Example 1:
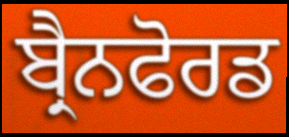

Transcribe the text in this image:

ਬ੍ਰੈਨਫੋਰਡ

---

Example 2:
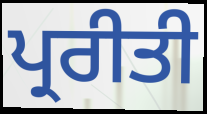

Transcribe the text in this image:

ਪ੍ਰਰੀਤੀ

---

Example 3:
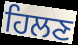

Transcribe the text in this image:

ਹਿਲਣ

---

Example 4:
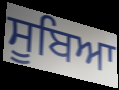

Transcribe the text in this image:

ਸੂਬਿਆ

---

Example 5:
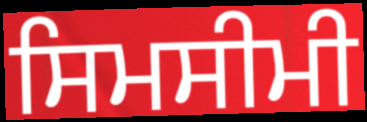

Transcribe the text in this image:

ਸਿਮਸੀਮੀ